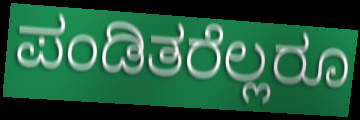
ಪಂಡಿತರೆಲ್ಲರೂ